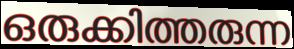
ഒരുക്കിത്തരുന്ന